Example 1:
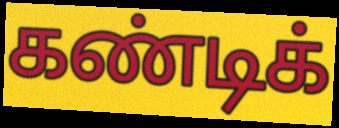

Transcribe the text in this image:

கண்டிக்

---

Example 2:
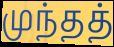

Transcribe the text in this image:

முந்தத்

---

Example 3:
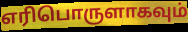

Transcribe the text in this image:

எரிபொருளாகவும்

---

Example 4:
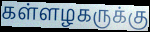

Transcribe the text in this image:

கள்ளழகருக்கு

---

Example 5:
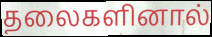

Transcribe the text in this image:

தலைகளினால்